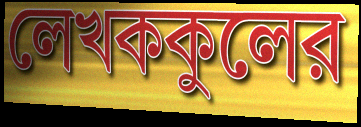
লেখককুলের